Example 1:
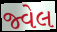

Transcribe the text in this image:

જ્વેલ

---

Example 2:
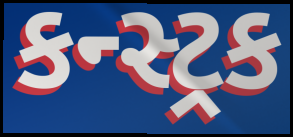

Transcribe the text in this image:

કન્સ્ટ્રક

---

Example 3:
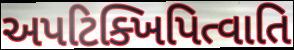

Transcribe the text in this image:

અપટિક્ખિપિત્વાતિ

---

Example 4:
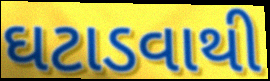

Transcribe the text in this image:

ઘટાડવાથી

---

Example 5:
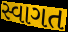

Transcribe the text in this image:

સ્વાગત